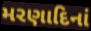
મરણાદિનાં